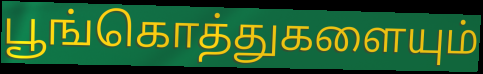
பூங்கொத்துகளையும்